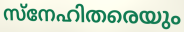
സ്നേഹിതരെയും